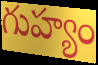
గుహ్యం